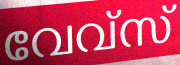
വേവ്സ്